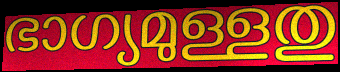
ഭാഗ്യമുള്ളതു